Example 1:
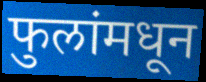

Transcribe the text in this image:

फुलांमधून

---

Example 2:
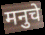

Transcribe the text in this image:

मनुचे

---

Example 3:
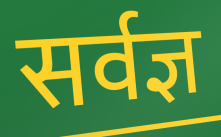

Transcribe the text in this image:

सर्वज्ञ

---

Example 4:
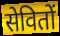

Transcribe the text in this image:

सेवितों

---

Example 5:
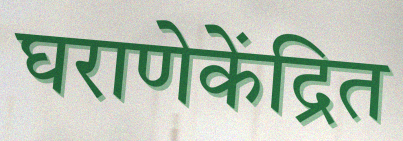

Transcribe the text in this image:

घराणेकेंद्रित